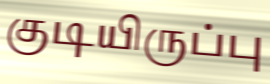
குடியிருப்பு